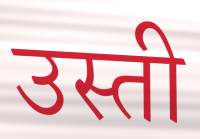
उस्ती